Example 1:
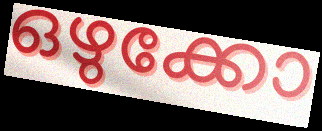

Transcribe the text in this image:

ഒഴുക്കോ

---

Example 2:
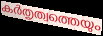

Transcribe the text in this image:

കർതൃത്വത്തെയും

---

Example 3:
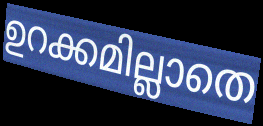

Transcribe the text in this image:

ഉറക്കമില്ലാതെ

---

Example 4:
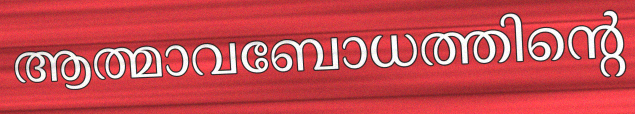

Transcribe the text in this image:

ആത്മാവബോധത്തിന്റെ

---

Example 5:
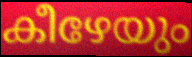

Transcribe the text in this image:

കീഴേയും